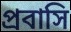
প্রবাসি